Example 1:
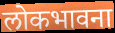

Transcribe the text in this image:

लोकभावना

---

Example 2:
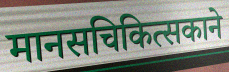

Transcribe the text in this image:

मानसचिकित्सकाने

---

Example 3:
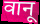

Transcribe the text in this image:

वानू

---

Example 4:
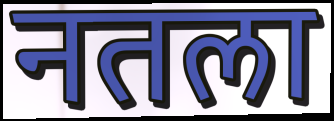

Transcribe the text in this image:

नतला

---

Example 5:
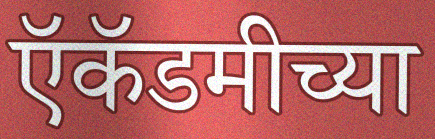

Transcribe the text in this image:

ऍकॅडमीच्या